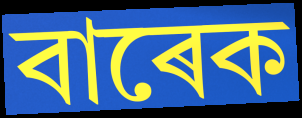
বাৰেক